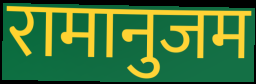
रामानुजम